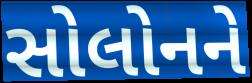
સોલોનને